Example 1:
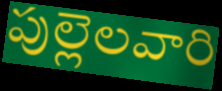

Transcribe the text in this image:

పుల్లెలవారి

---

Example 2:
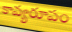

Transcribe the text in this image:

కావ్యరూపం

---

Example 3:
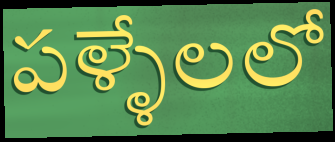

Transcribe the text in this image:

పళ్ళేలలో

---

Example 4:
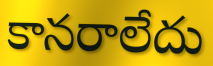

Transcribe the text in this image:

కానరాలేదు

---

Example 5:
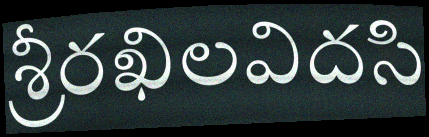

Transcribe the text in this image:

శ్రీరఖిలవిదసి